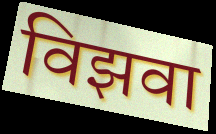
विझवा